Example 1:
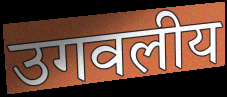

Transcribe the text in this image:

उगवलीय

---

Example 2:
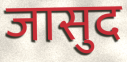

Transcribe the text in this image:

जासुद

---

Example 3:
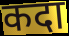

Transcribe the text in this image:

कदा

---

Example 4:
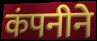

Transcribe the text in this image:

कंपनीने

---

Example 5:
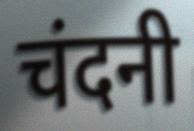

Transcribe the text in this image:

चंदनी